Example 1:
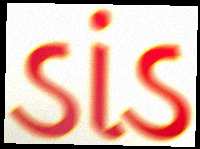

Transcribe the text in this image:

ડાંડ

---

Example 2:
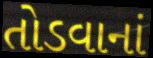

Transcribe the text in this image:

તોડવાનાં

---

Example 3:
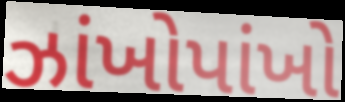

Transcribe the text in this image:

ઝાંખોપાંખો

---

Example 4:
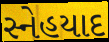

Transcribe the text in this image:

સ્નેહયાદ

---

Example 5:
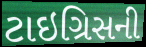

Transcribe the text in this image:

ટાઇગ્રિસની